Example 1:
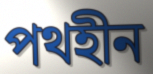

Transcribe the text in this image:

পথহীন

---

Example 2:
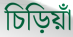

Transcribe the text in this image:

চিড়িয়াঁ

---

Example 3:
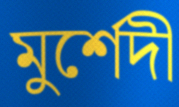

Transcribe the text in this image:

মুর্শেদী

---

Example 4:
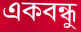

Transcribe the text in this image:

একবন্ধু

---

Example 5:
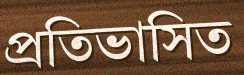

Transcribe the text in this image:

প্রতিভাসিত